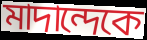
মাদান্দেকে